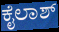
ಕೈಲಾಶ್